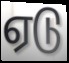
ஏடு